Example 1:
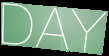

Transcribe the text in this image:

DAY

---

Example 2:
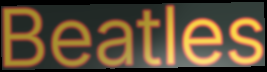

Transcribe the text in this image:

Beatles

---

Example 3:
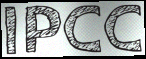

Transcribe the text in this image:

IPCC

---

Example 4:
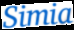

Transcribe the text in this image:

Simia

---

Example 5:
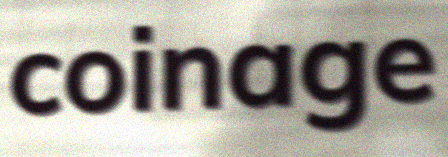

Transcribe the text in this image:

coinage